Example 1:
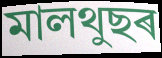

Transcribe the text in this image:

মালথুছৰ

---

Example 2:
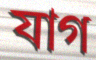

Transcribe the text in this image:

যাগ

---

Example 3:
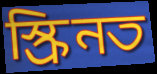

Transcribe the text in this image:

স্ক্ৰিনত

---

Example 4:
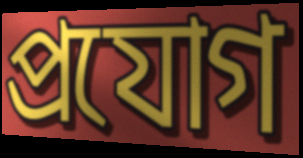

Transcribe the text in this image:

প্ৰযোগ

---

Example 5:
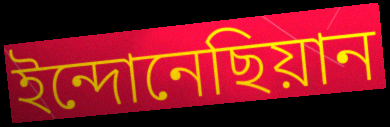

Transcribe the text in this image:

ইন্দোনেছিয়ান